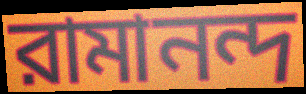
রামানন্দ